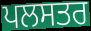
ਪਲਸਤਰ